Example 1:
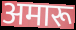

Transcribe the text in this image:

अमारू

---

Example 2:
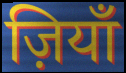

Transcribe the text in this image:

ज़ियाँ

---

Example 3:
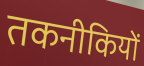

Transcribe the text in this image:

तकनीकियों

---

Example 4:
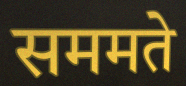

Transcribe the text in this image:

सममते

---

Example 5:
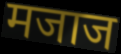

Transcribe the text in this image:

मजाज